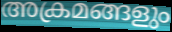
അക്രമങ്ങളും